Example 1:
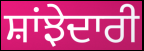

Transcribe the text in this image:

ਸ਼ਾਂਝੇਦਾਰੀ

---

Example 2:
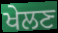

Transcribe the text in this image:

ਖੇਲਣ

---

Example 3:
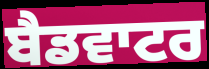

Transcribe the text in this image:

ਬੈਡਵਾਟਰ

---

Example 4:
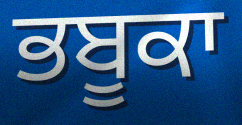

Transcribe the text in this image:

ਭਬੂਕਾ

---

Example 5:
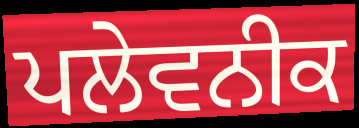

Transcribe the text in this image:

ਪਲੇਵਨੀਕ